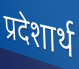
प्रदेशार्थ